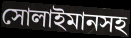
সোলাইমানসহ